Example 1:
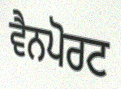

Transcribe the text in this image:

ਵੈਨਪੋਰਟ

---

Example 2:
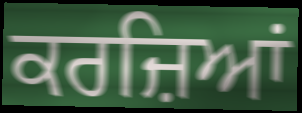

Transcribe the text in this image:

ਕਰਜ਼ਿਆਂ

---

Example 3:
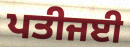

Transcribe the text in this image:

ਪਤੀਜਈ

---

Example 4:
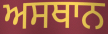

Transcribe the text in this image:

ਅਸਥਾਨ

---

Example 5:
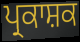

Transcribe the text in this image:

ਪ੍ਰਕਾਸ਼ਕ